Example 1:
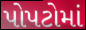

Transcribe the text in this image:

પોપટોમાં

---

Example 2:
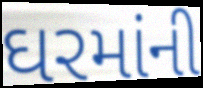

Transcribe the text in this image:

ઘરમાંની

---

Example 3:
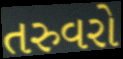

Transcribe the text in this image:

તરુવરો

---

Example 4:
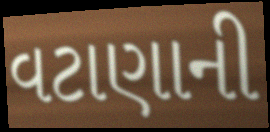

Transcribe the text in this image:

વટાણાની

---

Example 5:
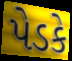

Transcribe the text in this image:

પેડકે